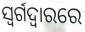
ସ୍ୱର୍ଗଦ୍ୱାରରେ